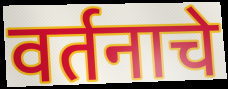
वर्तनाचे